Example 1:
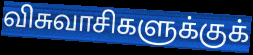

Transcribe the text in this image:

விசுவாசிகளுக்குக்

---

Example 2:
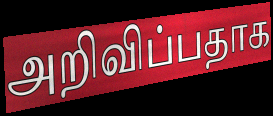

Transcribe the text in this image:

அறிவிப்பதாக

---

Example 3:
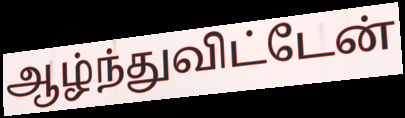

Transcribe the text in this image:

ஆழ்ந்துவிட்டேன்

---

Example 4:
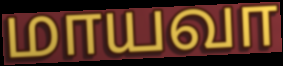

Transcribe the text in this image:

மாயவா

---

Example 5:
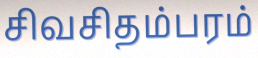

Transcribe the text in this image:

சிவசிதம்பரம்